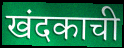
खंदकाची